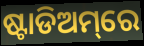
ଷ୍ଟାଡିଅମ୍‌ରେ